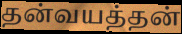
தன்வயத்தன்